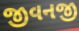
જીવનજી